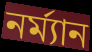
নর্ম্যান